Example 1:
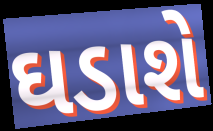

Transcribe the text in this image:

ઘડાશે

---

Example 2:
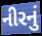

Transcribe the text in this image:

નીરનું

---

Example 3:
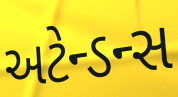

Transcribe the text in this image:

અટેન્ડન્સ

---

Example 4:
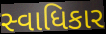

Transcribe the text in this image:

સ્વાધિકાર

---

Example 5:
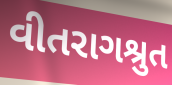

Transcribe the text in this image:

વીતરાગશ્રુત